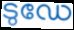
ടുഡേ